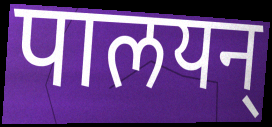
पालयन्